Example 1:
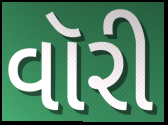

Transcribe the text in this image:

વૉરી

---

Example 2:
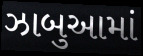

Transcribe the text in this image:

ઝાબુઆમાં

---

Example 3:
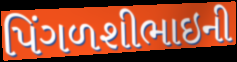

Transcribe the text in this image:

પિંગળશીભાઇની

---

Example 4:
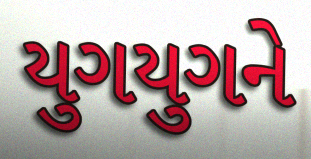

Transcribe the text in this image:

યુગયુગને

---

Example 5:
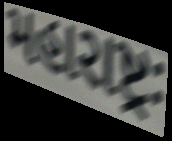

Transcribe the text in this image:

મહારાષ્ટ્રઃ